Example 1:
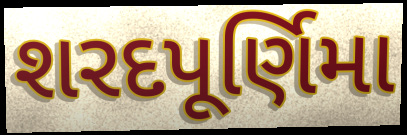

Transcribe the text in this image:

શરદપૂર્ણિમા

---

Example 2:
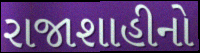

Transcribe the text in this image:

રાજાશાહીનો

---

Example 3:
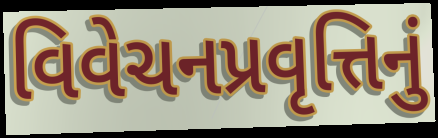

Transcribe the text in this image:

વિવેચનપ્રવૃત્તિનું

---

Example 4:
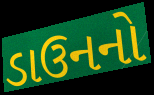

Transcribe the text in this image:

ડાઉનનો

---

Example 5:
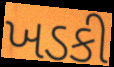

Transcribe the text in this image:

ખડકી